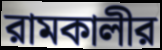
রামকালীর